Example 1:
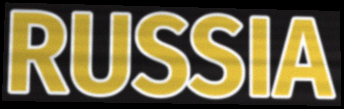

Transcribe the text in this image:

RUSSIA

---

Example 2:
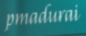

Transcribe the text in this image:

pmadurai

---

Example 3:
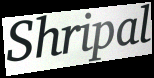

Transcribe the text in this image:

Shripal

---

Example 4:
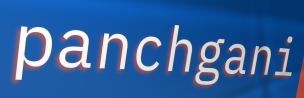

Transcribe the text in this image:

panchgani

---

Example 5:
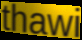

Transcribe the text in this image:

thawi